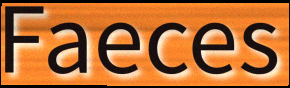
Faeces